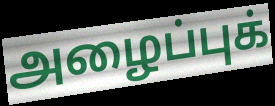
அழைப்புக்